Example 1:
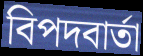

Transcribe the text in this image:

বিপদবার্তা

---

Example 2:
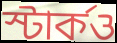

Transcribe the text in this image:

স্টার্কও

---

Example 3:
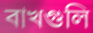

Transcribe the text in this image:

বাখগুলি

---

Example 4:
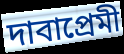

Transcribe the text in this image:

দাবাপ্রেমী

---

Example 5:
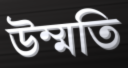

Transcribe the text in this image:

উম্মতি